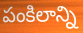
పంకిలాన్ని